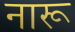
नारू